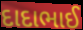
દાદાભાઈ